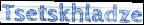
Tsetskhladze